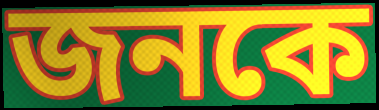
জনকে